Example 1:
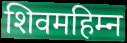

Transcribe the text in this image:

शिवमहिम्न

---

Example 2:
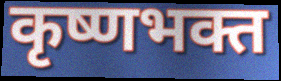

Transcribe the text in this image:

कृष्णभक्त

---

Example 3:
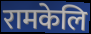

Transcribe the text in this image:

रामकेलि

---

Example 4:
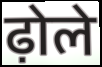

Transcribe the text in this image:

ढ़ोले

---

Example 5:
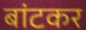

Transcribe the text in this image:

बांटकर